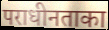
पराधीनताका